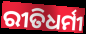
ରୀତିଧର୍ମୀ